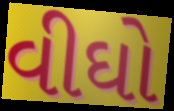
વીઘો